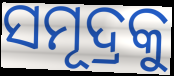
ସମୂଦ୍ରକୁ